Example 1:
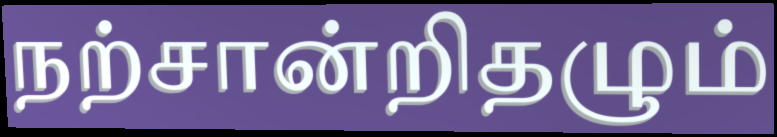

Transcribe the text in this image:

நற்சான்றிதழும்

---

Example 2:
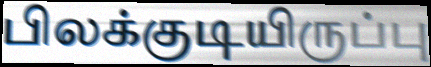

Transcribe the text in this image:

பிலக்குடியிருப்பு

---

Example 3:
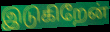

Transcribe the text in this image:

இடுகிறேன்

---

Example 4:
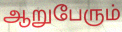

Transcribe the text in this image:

ஆறுபேரும்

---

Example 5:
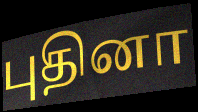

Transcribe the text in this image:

புதினா